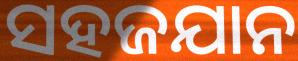
ସହଜଯାନ